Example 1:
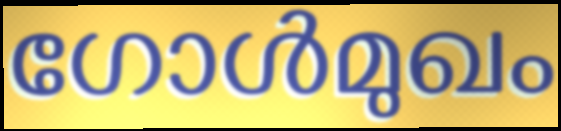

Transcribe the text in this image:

ഗോൾമുഖം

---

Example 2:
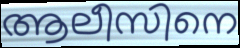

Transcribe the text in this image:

ആലീസിനെ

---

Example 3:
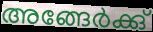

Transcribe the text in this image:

അങ്ങേർക്കു്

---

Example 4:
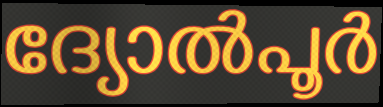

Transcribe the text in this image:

ദ്യോൽപൂർ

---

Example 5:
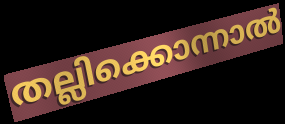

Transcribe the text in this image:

തല്ലിക്കൊന്നാൽ